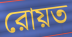
রোয়ত